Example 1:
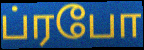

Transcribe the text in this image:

ப்ரபோ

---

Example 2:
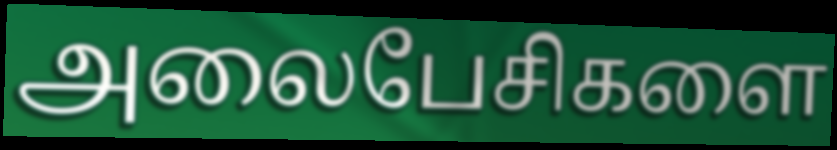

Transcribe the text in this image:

அலைபேசிகளை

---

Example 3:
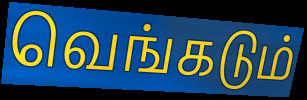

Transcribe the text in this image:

வெங்கடும்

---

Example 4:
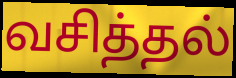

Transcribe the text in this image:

வசித்தல்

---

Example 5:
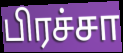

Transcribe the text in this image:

பிரச்சா